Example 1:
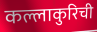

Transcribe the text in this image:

कल्लाकुरिची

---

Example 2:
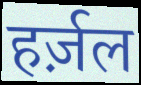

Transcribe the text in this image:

हर्ज़ल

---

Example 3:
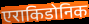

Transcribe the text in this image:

एराकिडोनिक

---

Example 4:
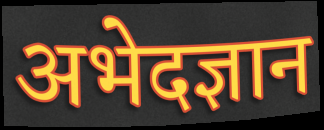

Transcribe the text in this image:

अभेदज्ञान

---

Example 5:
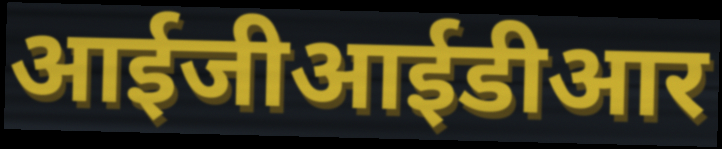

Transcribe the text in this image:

आईजीआईडीआर